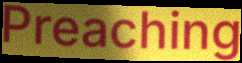
Preaching